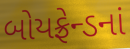
બોયફ્રેન્ડનાં